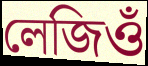
লেজিওঁ